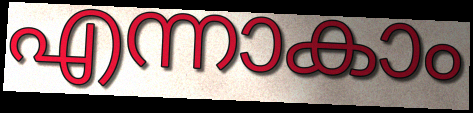
എന്നാകാം